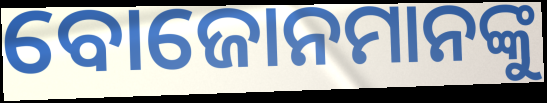
ବୋଜୋନମାନଙ୍କୁ